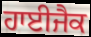
ਹਾਈਜੈਕ